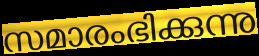
സമാരംഭിക്കുന്നു